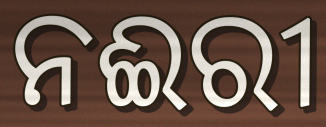
ନଈରୀ